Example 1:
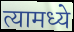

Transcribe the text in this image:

त्यामध्ये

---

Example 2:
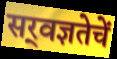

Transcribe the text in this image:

सर्वज्ञतेचें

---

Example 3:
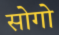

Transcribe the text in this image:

सोगो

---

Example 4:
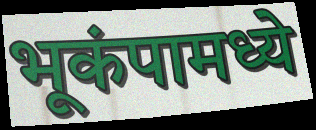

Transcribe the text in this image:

भूकंपामध्ये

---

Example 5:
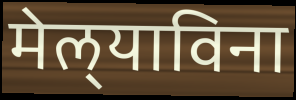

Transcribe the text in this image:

मेल्याविना